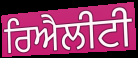
ਰਿਐਲੀਟੀ